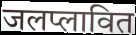
जलप्लावित